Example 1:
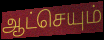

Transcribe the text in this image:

ஆட்செயும்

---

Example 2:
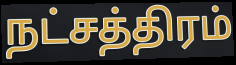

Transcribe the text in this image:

நட்சத்திரம்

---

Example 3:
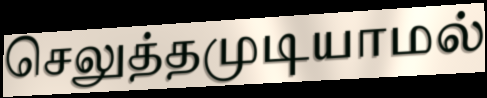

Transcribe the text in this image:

செலுத்தமுடியாமல்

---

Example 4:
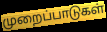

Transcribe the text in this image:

முறைப்பாடுகள்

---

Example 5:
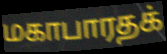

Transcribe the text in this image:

மகாபாரதக்